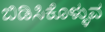
ಬಿಡಿಸಿಕೊಳ್ಳುವ